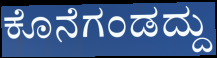
ಕೊನೆಗಂಡದ್ದು